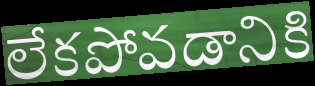
లేకపోవడానికి